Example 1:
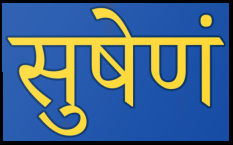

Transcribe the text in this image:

सुषेणं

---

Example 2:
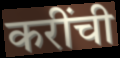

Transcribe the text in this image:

करींची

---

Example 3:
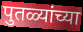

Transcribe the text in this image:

पुतळ्यांच्या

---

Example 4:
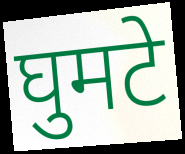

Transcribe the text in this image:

घुमटे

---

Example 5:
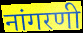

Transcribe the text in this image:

नांगरणी